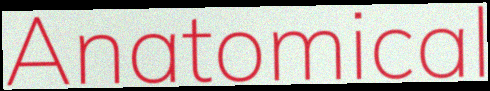
Anatomical